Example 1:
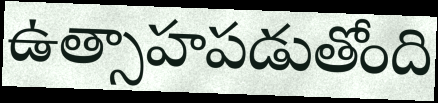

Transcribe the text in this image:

ఉత్సాహపడుతోంది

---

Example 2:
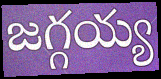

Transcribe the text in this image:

జగ్గయ్య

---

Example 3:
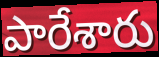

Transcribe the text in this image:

పారేశారు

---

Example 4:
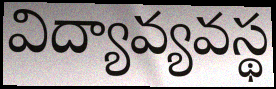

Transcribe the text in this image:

విద్యావ్యవస్థ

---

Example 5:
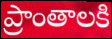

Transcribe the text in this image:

ప్రాంతాలకి